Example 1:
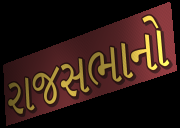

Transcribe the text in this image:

રાજસભાનો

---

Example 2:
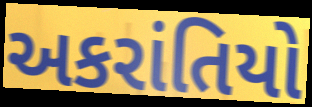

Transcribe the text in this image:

અકરાંતિયો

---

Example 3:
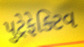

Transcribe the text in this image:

પુટ્રેફેક્ટિવ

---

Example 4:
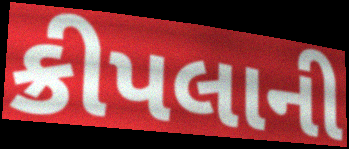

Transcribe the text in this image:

ક્રીપલાની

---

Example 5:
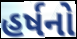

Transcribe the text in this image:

હર્ષનો